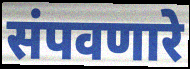
संपवणारे